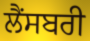
ਲੈਂਸਬਰੀ